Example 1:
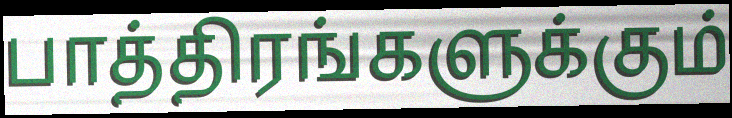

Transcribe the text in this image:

பாத்திரங்களுக்கும்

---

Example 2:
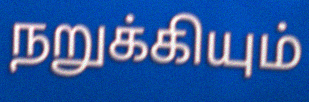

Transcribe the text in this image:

நறுக்கியும்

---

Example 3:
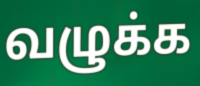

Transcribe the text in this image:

வழுக்க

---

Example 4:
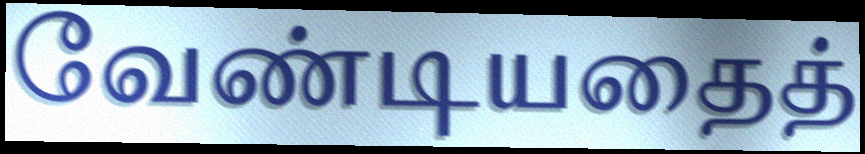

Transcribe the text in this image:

வேண்டியதைத்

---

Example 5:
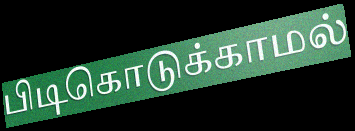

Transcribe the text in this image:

பிடிகொடுக்காமல்